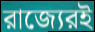
রাজ্যেরই